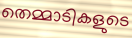
തെമ്മാടികളുടെ